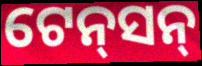
ଟେନ୍‌ସନ୍